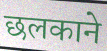
छलकाने